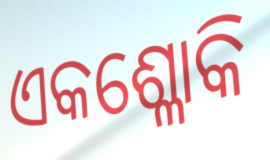
ଏକଶ୍ଳୋକି